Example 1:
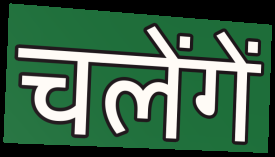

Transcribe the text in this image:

चलेंगें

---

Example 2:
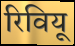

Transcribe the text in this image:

रिवियू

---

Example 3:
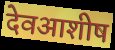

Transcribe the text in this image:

देवआशीष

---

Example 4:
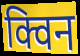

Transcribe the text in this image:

क्विन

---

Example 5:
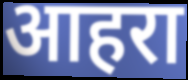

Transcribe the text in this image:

आहरा